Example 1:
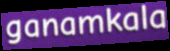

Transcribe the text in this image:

ganamkala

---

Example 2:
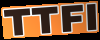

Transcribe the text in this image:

TTFI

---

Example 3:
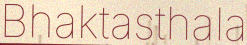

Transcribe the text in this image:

Bhaktasthala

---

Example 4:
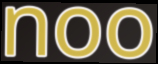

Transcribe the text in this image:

noo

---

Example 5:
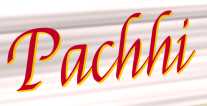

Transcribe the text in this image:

Pachhi